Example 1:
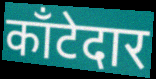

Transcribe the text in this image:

काँटेदार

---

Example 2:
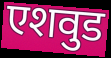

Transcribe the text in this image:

एशवुड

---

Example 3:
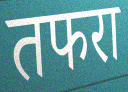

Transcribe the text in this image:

तफरा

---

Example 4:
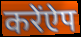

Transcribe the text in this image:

करेंऐप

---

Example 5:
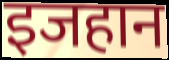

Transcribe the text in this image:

इजहान